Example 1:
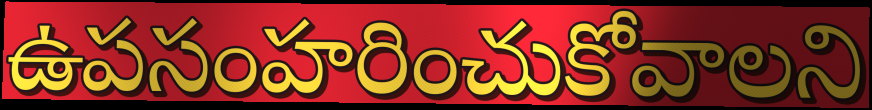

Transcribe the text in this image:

ఉపసంహరించుకోవాలని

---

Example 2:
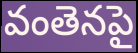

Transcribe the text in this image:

వంతెనపై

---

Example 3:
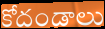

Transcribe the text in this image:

కోదండాలు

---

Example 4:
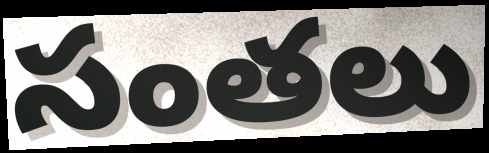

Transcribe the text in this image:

సంతలు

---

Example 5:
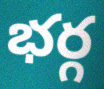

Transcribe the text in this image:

భర్గ